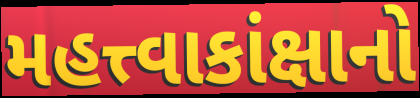
મહત્ત્વાકાંક્ષાનો